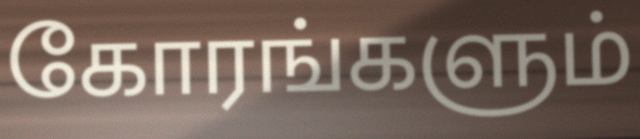
கோரங்களும்